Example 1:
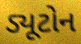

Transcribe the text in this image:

ડ્યૂટોન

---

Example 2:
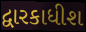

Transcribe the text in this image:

દ્વારકાધીશ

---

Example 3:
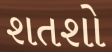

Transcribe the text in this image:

શતશો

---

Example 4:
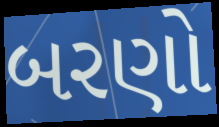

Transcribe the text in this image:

બરણો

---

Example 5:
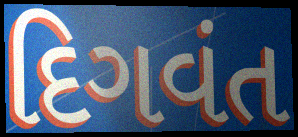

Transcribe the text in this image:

દિગવંત